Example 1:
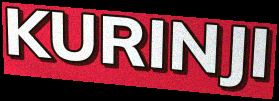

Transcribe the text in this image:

KURINJI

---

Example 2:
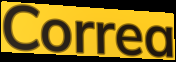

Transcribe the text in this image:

Correa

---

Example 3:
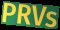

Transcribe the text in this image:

PRVs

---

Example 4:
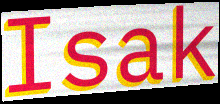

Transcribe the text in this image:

Isak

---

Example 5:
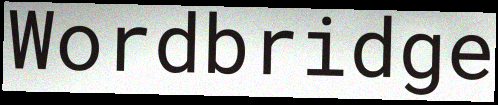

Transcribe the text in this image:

Wordbridge